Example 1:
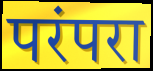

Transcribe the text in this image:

परंपरा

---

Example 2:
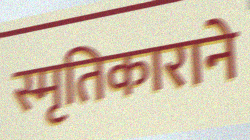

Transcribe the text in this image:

स्मृतिकाराने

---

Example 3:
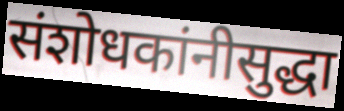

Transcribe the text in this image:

संशोधकांनीसुद्धा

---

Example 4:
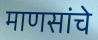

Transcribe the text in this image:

माणसांचे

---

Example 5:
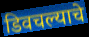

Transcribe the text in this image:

डिवचल्याचे